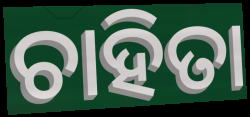
ଚାହିତା